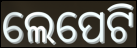
ଲେପେଟି